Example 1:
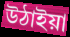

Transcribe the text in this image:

উঠাইয়া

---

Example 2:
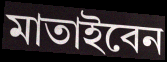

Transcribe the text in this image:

মাতাইবেন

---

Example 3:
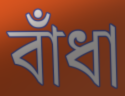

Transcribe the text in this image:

বাঁধা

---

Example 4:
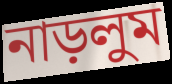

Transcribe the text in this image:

নাড়লুম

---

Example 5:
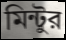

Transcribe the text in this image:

মিন্টুর